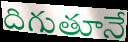
దిగుతూనే